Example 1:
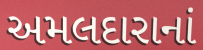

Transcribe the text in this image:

અમલદારાનાં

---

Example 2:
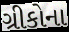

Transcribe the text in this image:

ગ્રીકોના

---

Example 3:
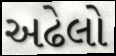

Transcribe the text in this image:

અઢેલો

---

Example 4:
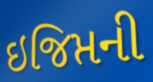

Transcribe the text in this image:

ઇજિપ્તની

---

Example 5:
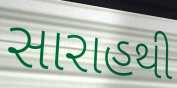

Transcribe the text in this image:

સારાહથી